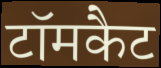
टॉमकैट